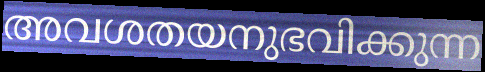
അവശതയനുഭവിക്കുന്ന